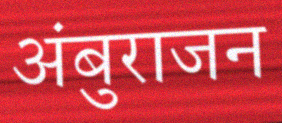
अंबुराजन